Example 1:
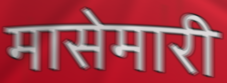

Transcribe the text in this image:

मासेमारी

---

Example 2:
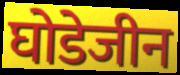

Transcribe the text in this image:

घोडेजीन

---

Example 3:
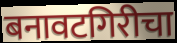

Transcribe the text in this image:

बनावटगिरीचा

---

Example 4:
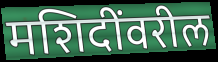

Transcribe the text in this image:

मशिदींवरील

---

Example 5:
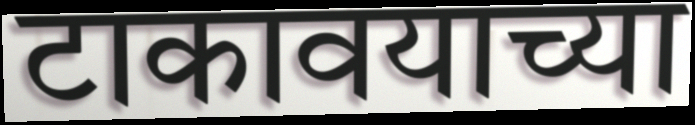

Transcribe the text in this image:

टाकावयाच्या